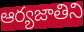
ఆర్యజాతిని